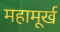
महामूर्ख